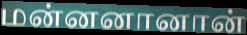
மன்னனானான்